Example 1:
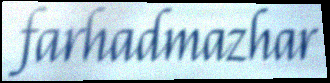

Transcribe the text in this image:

farhadmazhar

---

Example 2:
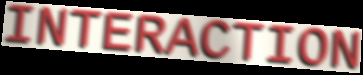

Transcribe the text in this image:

INTERACTION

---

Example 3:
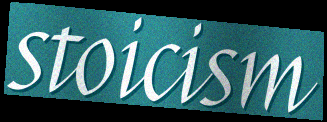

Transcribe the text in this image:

stoicism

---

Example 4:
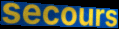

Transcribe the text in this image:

secours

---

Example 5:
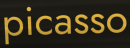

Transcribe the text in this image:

picasso